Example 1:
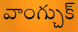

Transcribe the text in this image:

వాంగ్చుక్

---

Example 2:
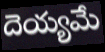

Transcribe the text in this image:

దెయ్యమే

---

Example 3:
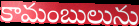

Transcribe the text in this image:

కామంబులును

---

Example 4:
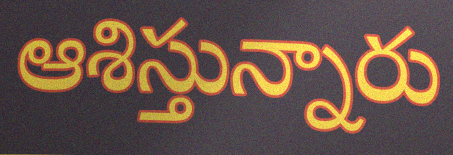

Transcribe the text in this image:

ఆశిస్తున్నారు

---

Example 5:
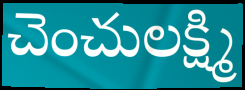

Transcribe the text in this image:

చెంచులక్ష్మి